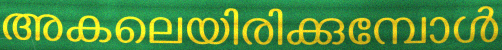
അകലെയിരിക്കുമ്പോൾ